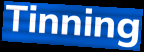
Tinning